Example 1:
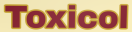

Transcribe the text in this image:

Toxicol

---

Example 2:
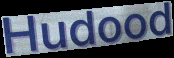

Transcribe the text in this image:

Hudood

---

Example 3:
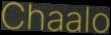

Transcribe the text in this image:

Chaalo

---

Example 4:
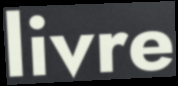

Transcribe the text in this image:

livre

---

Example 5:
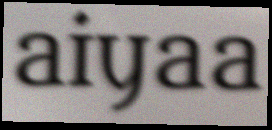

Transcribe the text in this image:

aiyaa